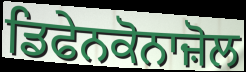
ਡਿਫੇਨਕੋਨਾਜ਼ੋਲ